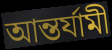
আন্তর্যামী